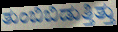
ತುಂಬಿಬಿಡುತ್ತಿತ್ತು